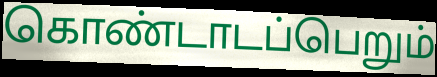
கொண்டாடப்பெறும்